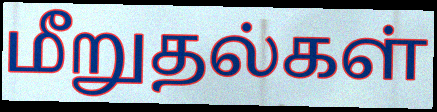
மீறுதல்கள்